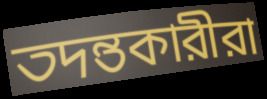
তদন্তকারীরা